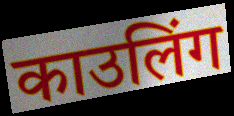
काउलिंग